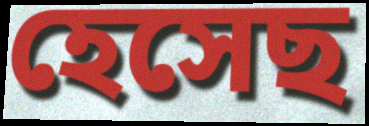
হেসেছ